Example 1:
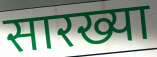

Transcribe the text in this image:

सारख्या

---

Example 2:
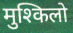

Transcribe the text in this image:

मुश्किलो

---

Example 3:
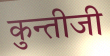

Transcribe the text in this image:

कुन्तीजी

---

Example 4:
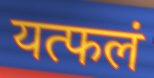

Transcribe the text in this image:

यत्फलं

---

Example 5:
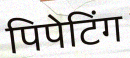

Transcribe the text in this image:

पिपेटिंग